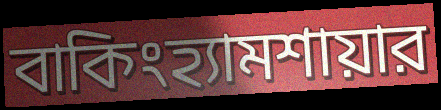
বাকিংহ্যামশায়ার